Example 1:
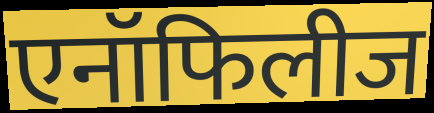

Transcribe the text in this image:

एनॉफिलीज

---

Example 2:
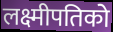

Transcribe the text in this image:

लक्ष्मीपतिको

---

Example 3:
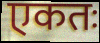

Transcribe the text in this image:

एकतः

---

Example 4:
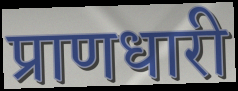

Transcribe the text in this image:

प्राणधारी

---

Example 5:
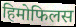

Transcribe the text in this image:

हिमोफिलस